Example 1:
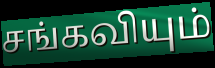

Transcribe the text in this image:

சங்கவியும்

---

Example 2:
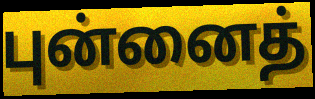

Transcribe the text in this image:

புன்னைத்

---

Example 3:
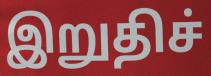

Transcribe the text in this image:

இறுதிச்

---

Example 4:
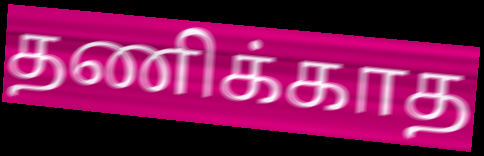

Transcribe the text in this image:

தணிக்காத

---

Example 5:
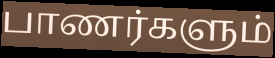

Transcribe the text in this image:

பாணர்களும்